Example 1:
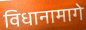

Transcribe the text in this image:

विधानामागे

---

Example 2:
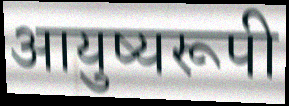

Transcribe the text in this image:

आयुष्यरूपी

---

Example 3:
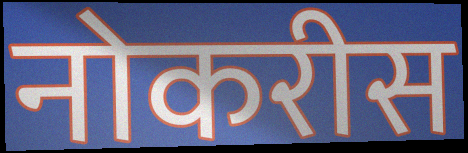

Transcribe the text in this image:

नोकरीस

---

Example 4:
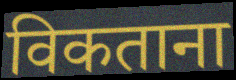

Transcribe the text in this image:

विकताना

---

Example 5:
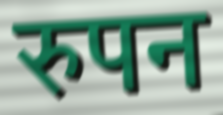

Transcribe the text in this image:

रुपन